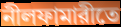
নীলফামারীতে